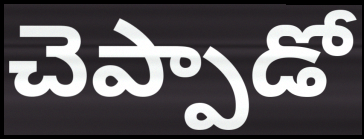
చెప్పాడో